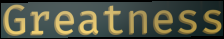
Greatness